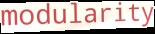
modularity